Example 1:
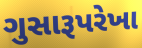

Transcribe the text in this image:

ગુસારૂપરેખા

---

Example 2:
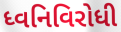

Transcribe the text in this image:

ધ્વનિવિરોધી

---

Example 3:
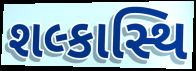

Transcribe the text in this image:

શલ્કાસ્થિ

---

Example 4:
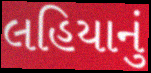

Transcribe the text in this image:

લહિયાનું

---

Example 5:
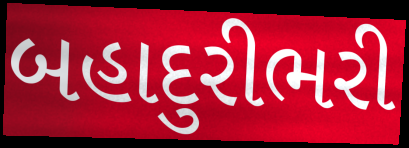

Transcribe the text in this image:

બહાદુરીભરી